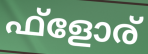
ഫ്ളോര്